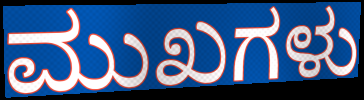
ಮುಖಗಳು